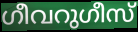
ഗീവറുഗീസ്